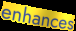
enhances